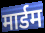
मार्डम